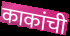
काकांची